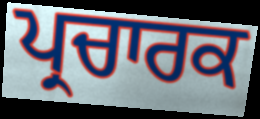
ਪ੍ਰਚਾਰਕ